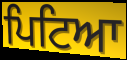
ਪਿਟਿਆ